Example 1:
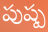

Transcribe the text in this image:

పుష్ప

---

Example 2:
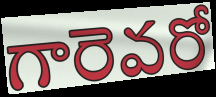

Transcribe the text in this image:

గారెవరో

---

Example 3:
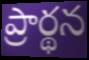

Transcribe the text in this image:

ప్రార్థన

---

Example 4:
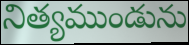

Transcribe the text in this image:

నిత్యముండును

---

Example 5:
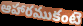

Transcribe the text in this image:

ఆహారముకంటె